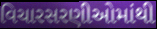
વિચારસરણીઓમાંથી